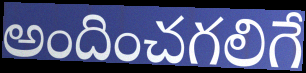
అందించగలిగే